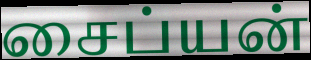
சைப்யன்